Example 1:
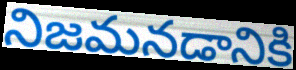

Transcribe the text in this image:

నిజమనడానికి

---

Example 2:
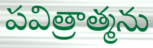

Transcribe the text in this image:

పవిత్రాత్మను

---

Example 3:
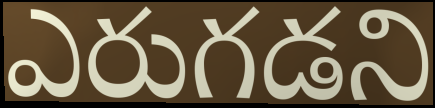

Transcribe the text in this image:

ఎరుగడని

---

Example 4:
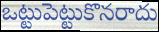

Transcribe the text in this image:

ఒట్టుపెట్టుకొనరాదు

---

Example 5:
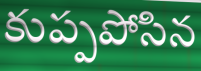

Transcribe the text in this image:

కుప్పపోసిన